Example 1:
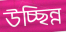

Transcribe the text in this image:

উচ্ছিন্ন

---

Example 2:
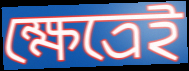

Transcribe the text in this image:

ক্ষেত্রেই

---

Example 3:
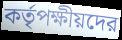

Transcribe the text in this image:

কর্তৃপক্ষীয়দের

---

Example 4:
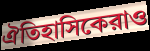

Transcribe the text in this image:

ঐতিহাসিকেরাও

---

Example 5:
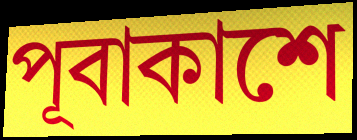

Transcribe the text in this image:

পূবাকাশে